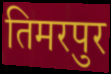
तिमरपुर